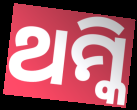
ଥମ୍କି